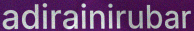
adirainirubar